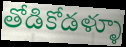
తోడికోడళ్ళూ